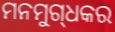
ମନମୁଗ୍‌ଧକର